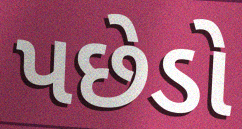
પછેડો